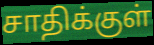
சாதிக்குள்